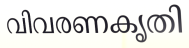
വിവരണകൃതി